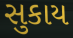
સુકાય